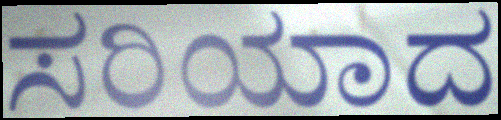
ಸರಿಯಾದ